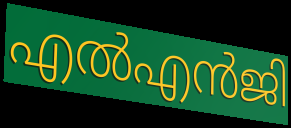
എൽഎൻജി